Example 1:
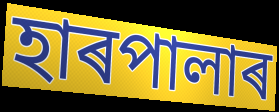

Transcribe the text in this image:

হাৰপালাৰ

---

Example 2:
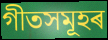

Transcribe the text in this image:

গীতসমূহৰ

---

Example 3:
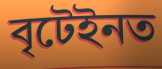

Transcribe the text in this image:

বৃটেইনত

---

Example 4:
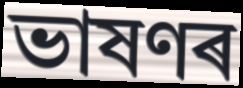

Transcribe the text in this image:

ভাষণৰ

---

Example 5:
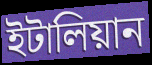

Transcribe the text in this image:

ইটালিয়ান